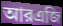
আরএজি